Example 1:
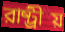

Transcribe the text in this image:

রাষ্ট্রীয়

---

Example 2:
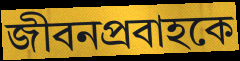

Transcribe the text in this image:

জীবনপ্রবাহকে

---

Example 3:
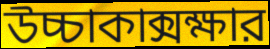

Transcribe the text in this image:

উচ্চাকাক্সক্ষার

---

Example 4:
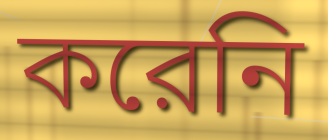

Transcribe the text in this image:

করেনি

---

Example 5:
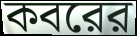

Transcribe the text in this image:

কবরের